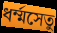
ধর্ম্মসেতু